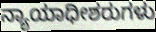
ನ್ಯಾಯಾಧೀಶರುಗಳು